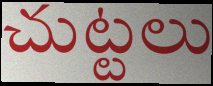
చుట్టలు